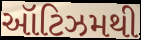
ઑટિઝમથી